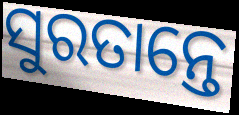
ସୁରତାନ୍ତେ